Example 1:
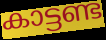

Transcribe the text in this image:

കാട്ടണ്ട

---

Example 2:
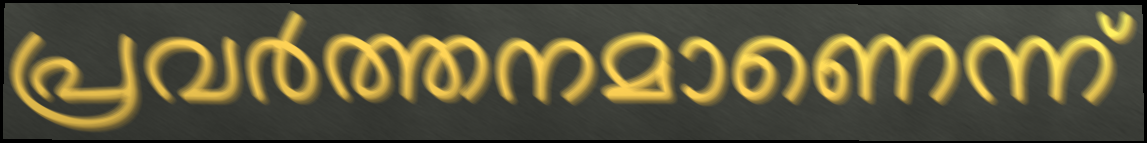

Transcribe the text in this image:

പ്രവർത്തനമാണെന്ന്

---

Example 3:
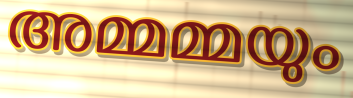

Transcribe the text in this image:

അമ്മമ്മയും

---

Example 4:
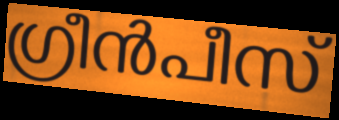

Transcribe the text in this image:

ഗ്രീൻപീസ്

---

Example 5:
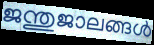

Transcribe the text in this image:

ജന്തുജാലങ്ങൾ